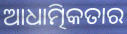
ଆଧାତ୍ମିକତାର